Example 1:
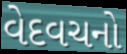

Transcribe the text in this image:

વેદવચનો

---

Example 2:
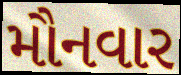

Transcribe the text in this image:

મૌનવાર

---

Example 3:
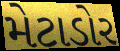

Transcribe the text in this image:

મેટાડોર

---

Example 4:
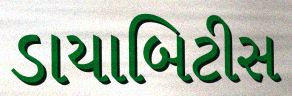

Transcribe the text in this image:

ડાયાબિટીસ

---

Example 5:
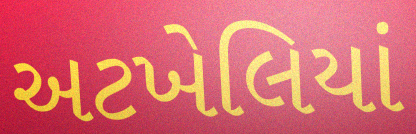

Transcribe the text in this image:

અટખેલિયાં